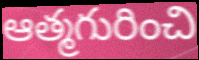
ఆత్మగురించి